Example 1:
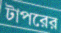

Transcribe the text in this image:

টাপরের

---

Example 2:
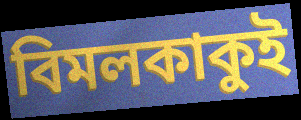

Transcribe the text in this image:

বিমলকাকুই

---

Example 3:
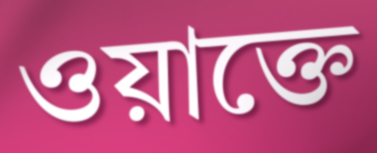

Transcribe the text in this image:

ওয়াক্তে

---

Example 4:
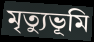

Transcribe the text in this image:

মৃত্যুভূমি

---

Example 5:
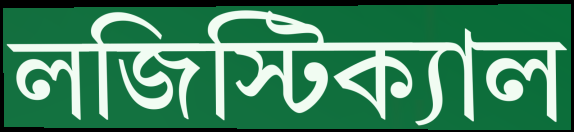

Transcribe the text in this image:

লজিস্টিক্যাল